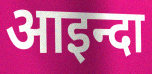
आइन्दा